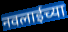
नवलाईच्या